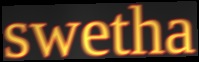
swetha